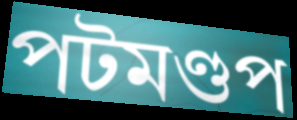
পটমণ্ডপ